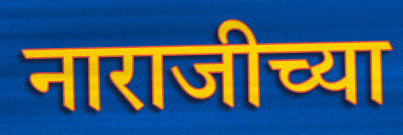
नाराजीच्या